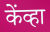
केंव्हा